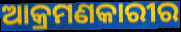
ଆକ୍ରମଣକାରୀର